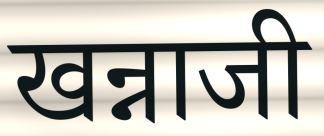
खन्नाजी